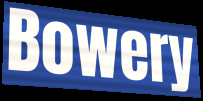
Bowery